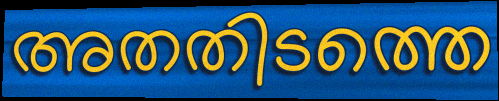
അതതിടത്തെ